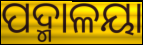
ପଦ୍ମାଳୟା